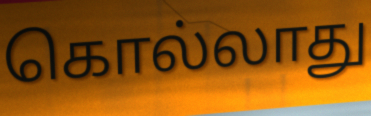
கொல்லாது